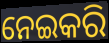
ନେଇକରି